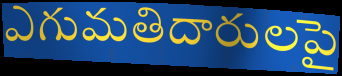
ఎగుమతిదారులపై